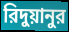
রিদুয়ানুর